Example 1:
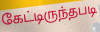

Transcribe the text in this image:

கேட்டிருந்தபடி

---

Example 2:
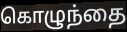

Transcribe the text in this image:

கொழுந்தை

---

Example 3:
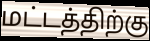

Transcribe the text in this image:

மட்டத்திற்கு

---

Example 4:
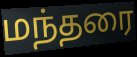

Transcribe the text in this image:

மந்தரை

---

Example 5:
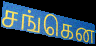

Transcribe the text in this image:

சங்கென